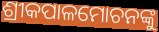
ଶ୍ରୀକପାଳମୋଚନଙ୍କୁ